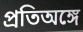
প্রতিঅঙ্গে